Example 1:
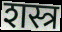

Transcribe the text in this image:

शस्त्र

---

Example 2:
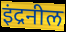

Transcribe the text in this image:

इंद्रनील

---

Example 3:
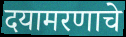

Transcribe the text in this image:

दयामरणाचे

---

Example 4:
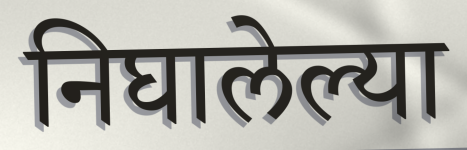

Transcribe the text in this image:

निघालेल्या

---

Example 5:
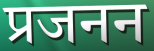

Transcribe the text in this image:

प्रजनन